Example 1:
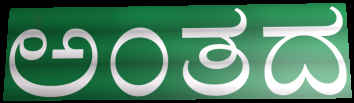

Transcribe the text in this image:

ಅಂತದ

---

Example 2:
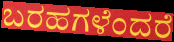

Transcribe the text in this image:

ಬರಹಗಳೆಂದರೆ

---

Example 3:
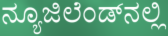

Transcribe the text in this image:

ನ್ಯೂಜಿಲೆಂಡ್‌ನಲ್ಲಿ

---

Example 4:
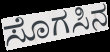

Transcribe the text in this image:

ಸೊಗಸಿನ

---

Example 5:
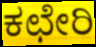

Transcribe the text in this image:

ಕಛೇರಿ